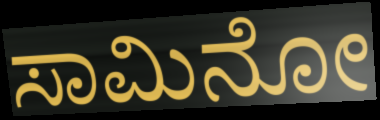
ಸಾಮಿನೋ